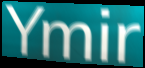
Ymir